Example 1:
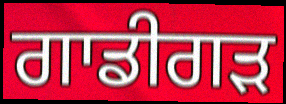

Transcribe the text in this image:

ਗਾਡੀਗੜ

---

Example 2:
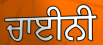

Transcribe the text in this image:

ਚਾਈਨੀ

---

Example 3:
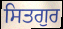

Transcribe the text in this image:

ਸਿਤਗੁਰ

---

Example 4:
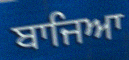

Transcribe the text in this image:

ਬਾਜਿਆ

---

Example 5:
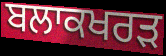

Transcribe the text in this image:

ਬਲਾਕਖਰੜ